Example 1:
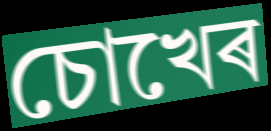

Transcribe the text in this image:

চোখেৰ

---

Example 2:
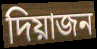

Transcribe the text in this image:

দিয়াজন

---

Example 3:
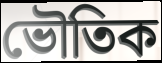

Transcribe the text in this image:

ভৌতিক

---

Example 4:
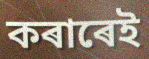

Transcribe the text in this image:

কৰাৰেই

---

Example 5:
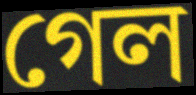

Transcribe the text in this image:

গেল